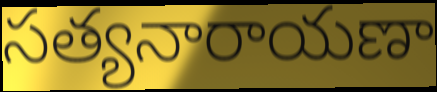
సత్యనారాయణా